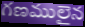
గణములైన